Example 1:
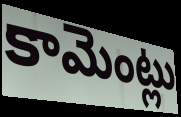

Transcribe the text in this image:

కామెంట్లు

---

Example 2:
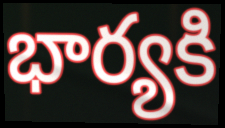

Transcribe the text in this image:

భార్యకి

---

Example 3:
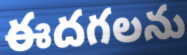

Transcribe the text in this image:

ఈదగలను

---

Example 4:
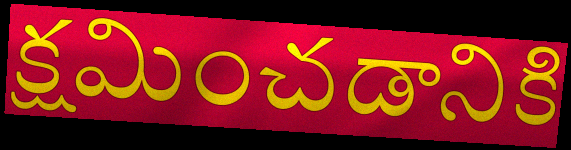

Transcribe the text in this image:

క్షమించడానికి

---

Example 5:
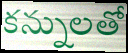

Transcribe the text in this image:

కన్నులతో